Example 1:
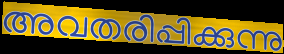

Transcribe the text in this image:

അവതരിപ്പിക്കുന്നു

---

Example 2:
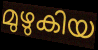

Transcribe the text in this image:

മുഴുകിയ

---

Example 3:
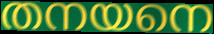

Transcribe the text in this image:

തനയനെ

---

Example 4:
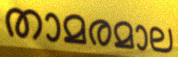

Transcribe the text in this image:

താമരമാല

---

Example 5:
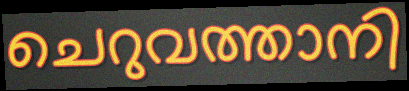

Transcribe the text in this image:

ചെറുവത്താനി